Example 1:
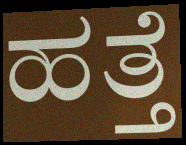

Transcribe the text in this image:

ಹತ್ತೆ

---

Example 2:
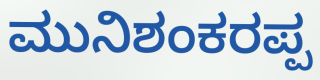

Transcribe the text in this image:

ಮುನಿಶಂಕರಪ್ಪ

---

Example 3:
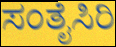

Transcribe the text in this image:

ಸಂತೈಸಿರಿ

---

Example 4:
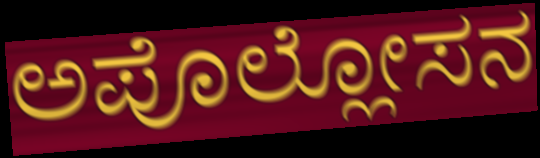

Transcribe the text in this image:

ಅಪೊಲ್ಲೋಸನ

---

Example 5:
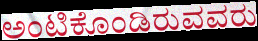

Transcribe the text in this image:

ಅಂಟಿಕೊಂಡಿರುವವರು